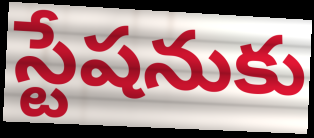
స్టేషనుకు